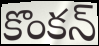
కొంకన్